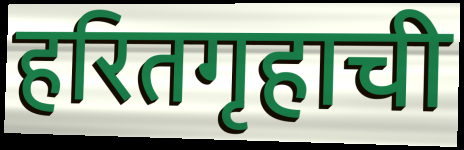
हरितगृहाची